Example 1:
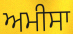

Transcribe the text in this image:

ਅਮੀਸਾ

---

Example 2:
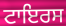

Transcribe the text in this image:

ਟਾਇਰਸ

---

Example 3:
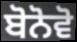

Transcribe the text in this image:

ਬੋਨੋਵੋ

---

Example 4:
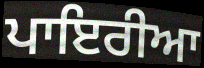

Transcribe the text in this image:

ਪਾਇਰੀਆ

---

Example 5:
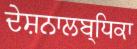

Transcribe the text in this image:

ਦੇਸ਼ਨਾਲਬ੍ਧਿਕਾ